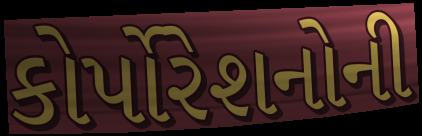
કોર્પોરેશનોની